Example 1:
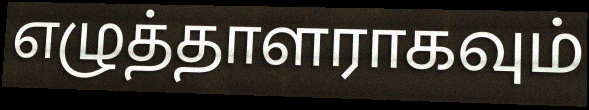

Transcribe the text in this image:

எழுத்தாளராகவும்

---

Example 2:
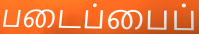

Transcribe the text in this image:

படைப்பைப்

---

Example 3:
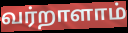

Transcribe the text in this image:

வர்றாளாம்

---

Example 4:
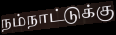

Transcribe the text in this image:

நம்நாட்டுக்கு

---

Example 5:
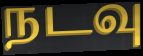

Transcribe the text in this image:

நடவு